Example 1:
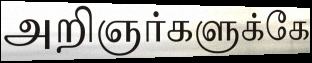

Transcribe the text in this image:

அறிஞர்களுக்கே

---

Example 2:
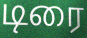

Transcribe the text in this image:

டிரை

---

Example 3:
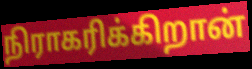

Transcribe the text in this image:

நிராகரிக்கிறான்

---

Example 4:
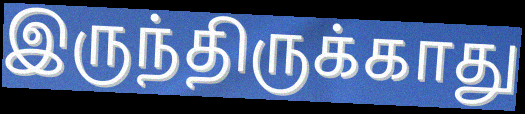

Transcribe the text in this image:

இருந்திருக்காது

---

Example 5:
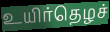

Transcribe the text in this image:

உயிர்தெழச்